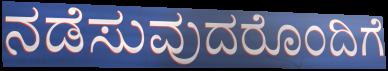
ನಡೆಸುವುದರೊಂದಿಗೆ